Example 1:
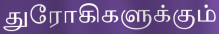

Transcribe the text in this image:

துரோகிகளுக்கும்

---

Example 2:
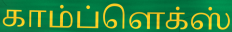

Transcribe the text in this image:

காம்ப்ளெக்ஸ்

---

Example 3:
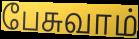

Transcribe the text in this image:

பேசுவாம்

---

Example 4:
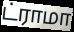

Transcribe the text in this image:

ட்ராமா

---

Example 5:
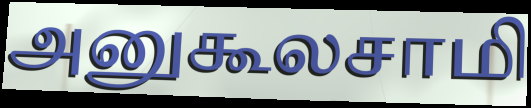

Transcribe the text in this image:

அனுகூலசாமி